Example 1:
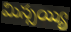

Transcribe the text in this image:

మిస్సయ్యి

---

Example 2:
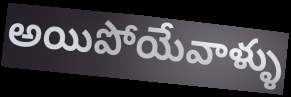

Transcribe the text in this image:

అయిపోయేవాళ్ళు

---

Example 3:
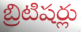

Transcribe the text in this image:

బ్రిటిషర్లు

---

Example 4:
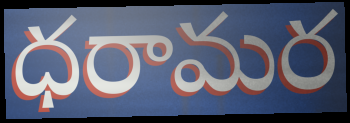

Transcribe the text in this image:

ధరామర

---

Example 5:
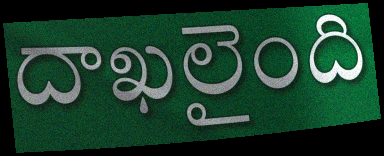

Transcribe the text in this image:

దాఖలైంది